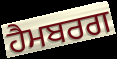
ਹੈਮਬਰਗ